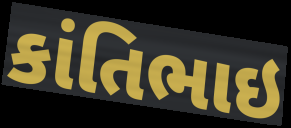
કાંતિભાઇ